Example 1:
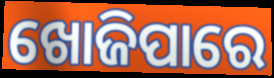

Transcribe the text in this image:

ଖୋଜିପାରେ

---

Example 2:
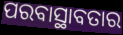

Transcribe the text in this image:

ପରବାସ୍ଥାବତାର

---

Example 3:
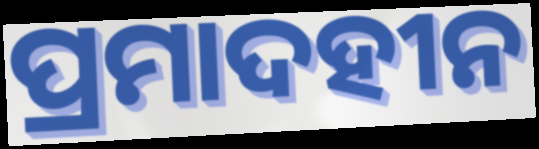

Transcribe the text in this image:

ପ୍ରମାଦହୀନ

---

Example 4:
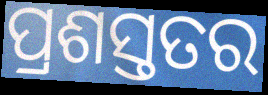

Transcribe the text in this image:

ପ୍ରଶସ୍ତତର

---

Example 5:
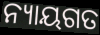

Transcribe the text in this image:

ନ୍ୟାୟଗତ